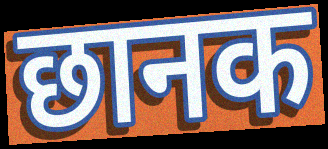
छानक